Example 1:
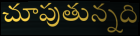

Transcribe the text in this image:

చూపుతున్నది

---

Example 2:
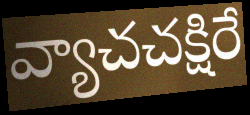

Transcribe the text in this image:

వ్యాచచక్షిరే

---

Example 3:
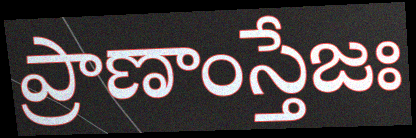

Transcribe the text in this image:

ప్రాణాంస్తేజః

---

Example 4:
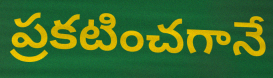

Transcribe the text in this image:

ప్రకటించగానే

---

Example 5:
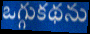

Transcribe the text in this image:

ఒగ్గుకథను